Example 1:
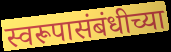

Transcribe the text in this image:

स्वरूपासंबंधीच्या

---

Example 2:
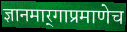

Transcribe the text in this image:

ज्ञानमार्गाप्रमाणेच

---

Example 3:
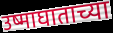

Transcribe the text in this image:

उष्माघाताच्या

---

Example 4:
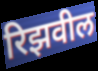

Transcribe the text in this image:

रिझवील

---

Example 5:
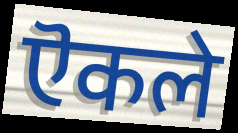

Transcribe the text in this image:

ऎकले